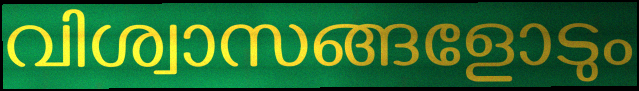
വിശ്വാസങ്ങളോടും